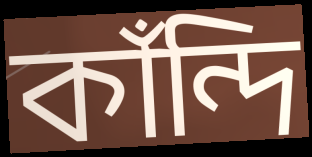
কাঁন্দি